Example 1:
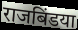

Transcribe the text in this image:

राजबिंडया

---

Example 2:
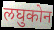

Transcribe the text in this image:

लघुकोन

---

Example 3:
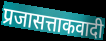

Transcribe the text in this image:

प्रजासत्ताकवादी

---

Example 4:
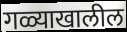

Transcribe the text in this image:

गळ्याखालील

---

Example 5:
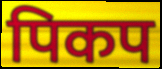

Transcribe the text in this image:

पिकप